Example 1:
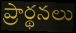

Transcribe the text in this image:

ప్రార్థనలు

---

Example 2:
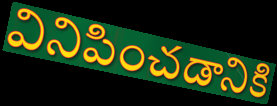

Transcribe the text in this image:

వినిపించడానికి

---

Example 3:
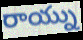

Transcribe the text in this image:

రాయ్ను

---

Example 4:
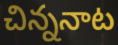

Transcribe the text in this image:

చిన్ననాట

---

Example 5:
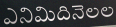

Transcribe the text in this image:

ఎనిమిదినెలల